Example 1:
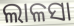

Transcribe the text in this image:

ଲାଳସା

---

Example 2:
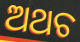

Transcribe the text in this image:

ଅଥଚ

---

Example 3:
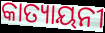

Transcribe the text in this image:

କାତ୍ୟାୟନୀ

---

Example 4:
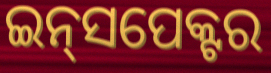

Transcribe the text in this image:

ଇନ୍‍ସପେକ୍ଟର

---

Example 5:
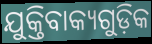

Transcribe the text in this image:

ଯୁକ୍ତିବାକ୍ୟଗୁଡ଼ିକ